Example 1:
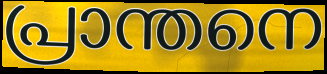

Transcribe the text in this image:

പ്രാന്തനെ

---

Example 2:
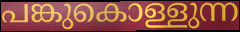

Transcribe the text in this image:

പങ്കുകൊള്ളുന്ന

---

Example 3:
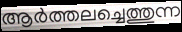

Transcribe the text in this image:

ആർത്തലച്ചെത്തുന്ന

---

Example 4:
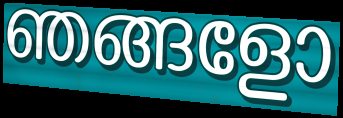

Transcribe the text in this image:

ഞങ്ങളോ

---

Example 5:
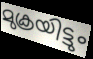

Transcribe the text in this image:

മുക്രയിട്ടും